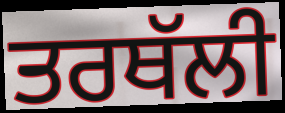
ਤਰਥੱਲੀ